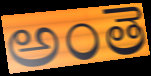
అంతె